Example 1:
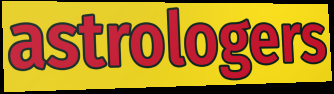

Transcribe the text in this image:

astrologers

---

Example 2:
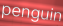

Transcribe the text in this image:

penguin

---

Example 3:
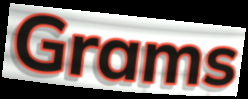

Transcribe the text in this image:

Grams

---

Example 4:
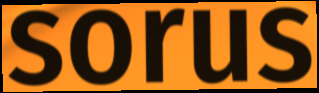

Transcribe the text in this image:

sorus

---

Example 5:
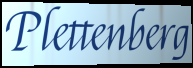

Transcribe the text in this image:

Plettenberg